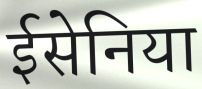
ईसेनिया